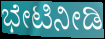
ಭೇಟಿನೀಡಿ